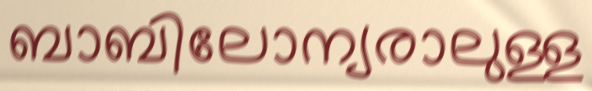
ബാബിലോന്യരാലുള്ള